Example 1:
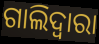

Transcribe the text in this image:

ଗାଲିଦ୍ଵାରା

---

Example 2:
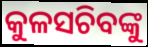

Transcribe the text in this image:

କୁଳସଚିବଙ୍କୁ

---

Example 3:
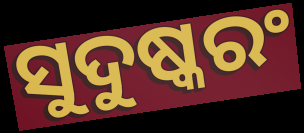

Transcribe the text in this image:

ସୁଦୁଷ୍କରଂ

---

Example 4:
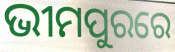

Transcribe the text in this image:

ଭୀମପୁରରେ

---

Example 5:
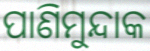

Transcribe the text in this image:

ପାଣିମୁନ୍ଦାକ